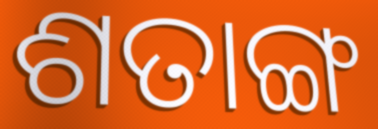
ଶତାଙ୍ଗ